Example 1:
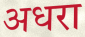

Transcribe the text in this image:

अधरा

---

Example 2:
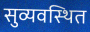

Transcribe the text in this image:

सुव्यवस्थित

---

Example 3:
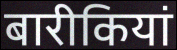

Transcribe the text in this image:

बारीकियां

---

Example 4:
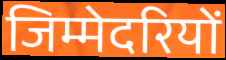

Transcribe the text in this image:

जिम्मेदरियों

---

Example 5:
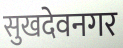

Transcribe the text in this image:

सुखदेवनगर